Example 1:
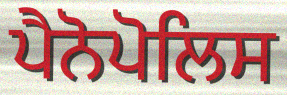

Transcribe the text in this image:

ਪੈਨੋਪੋਲਿਸ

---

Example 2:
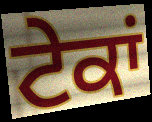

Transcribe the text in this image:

ਟੇਕਾਂ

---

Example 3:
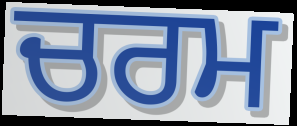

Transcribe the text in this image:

ਚਰਮ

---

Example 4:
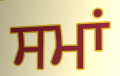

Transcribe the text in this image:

ਸਮਾਂ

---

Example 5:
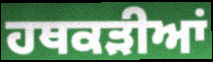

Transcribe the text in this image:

ਹਥਕੜੀਆਂ